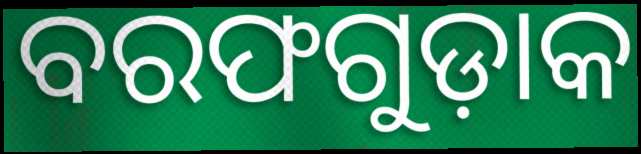
ବରଫଗୁଡ଼ାକ